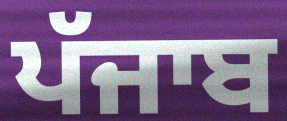
ਪੱਜਾਬ